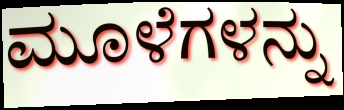
ಮೂಳೆಗಳನ್ನು